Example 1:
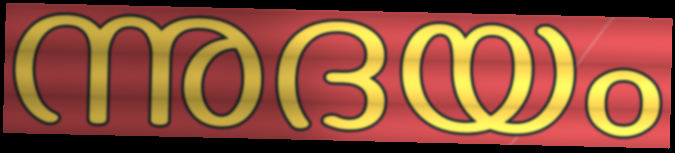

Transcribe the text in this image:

ന്നുദയം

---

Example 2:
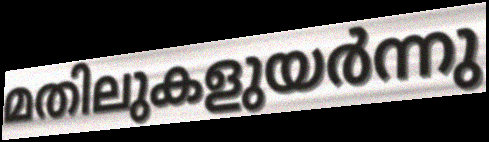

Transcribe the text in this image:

മതിലുകളുയർന്നു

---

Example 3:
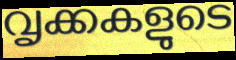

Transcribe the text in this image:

വൃക്കകളുടെ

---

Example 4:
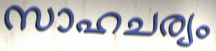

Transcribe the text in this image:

സാഹചര്യം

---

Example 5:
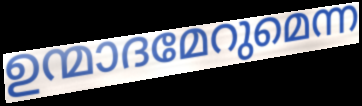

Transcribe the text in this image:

ഉന്മാദമേറുമെന്ന